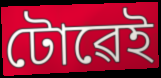
টোৱেই